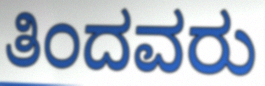
ತಿಂದವರು